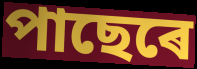
পাছেৰে